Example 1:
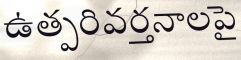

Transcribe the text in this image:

ఉత్పరివర్తనాలపై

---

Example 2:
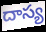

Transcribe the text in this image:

దాస్య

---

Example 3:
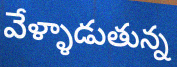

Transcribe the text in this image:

వేళ్ళాడుతున్న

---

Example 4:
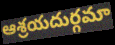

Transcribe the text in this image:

ఆశ్రయదుర్గమా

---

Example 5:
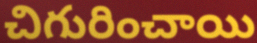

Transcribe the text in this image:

చిగురించాయి